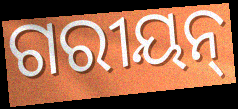
ଗରୀୟନ୍